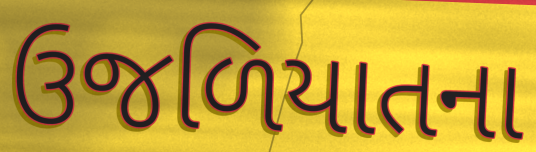
ઉજળિયાતના